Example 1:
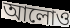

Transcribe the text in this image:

আলোও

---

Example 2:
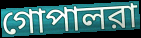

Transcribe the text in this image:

গোপালরা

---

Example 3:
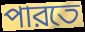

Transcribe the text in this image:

পারতে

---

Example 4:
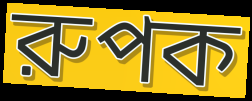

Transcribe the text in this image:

রুপক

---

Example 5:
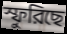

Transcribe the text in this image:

স্ফুরিছে